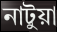
নাটুয়া